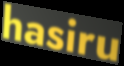
hasiru